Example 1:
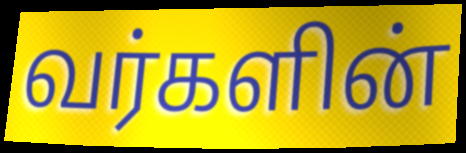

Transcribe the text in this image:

வர்களின்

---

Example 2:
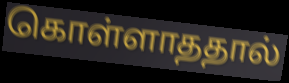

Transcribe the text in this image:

கொள்ளாததால்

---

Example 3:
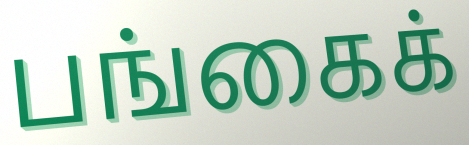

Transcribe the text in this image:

பங்கைக்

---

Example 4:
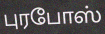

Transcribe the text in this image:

புரபோஸ்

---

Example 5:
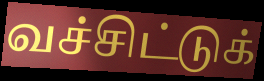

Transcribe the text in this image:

வச்சிட்டுக்